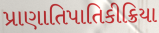
પ્રાણાતિપાતિકીક્રિયા